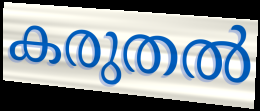
കരുതൽ